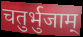
चतुर्भुजाम्